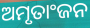
ଅମୃତାଂଜନ